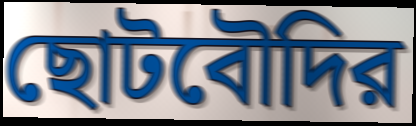
ছোটবৌদির